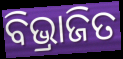
ବିଭ୍ରାଜିତ